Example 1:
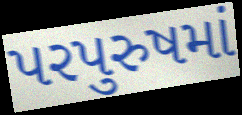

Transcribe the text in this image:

પરપુરુષમાં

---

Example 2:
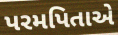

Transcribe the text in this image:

પરમપિતાએ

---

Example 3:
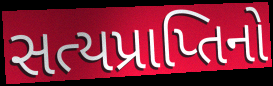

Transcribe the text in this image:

સત્યપ્રાપ્તિનો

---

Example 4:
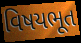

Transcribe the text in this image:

વિષયભૂત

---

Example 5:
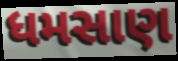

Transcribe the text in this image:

ધમસાણ